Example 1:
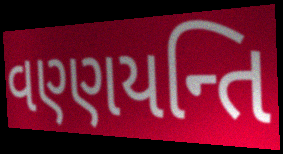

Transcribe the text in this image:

વણ્ણયન્તિ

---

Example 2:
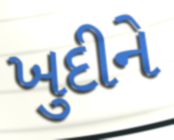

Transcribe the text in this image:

ખુદીને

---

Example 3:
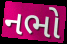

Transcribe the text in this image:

નભો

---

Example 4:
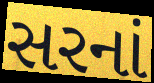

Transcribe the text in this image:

સરનાં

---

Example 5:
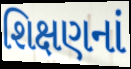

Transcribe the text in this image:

શિક્ષણનાં